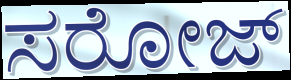
ಸರೋಜ್